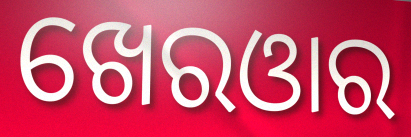
ଖେରଓାର